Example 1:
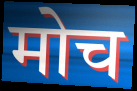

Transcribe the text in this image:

मोच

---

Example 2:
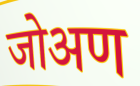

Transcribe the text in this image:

जोअण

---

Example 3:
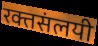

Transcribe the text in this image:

रक्तसंलयी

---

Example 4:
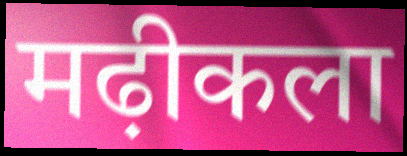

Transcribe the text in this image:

मढ़ीकला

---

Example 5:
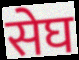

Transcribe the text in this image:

सेघ